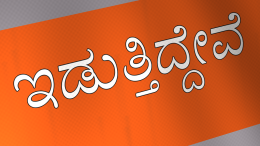
ಇಡುತ್ತಿದ್ದೇವೆ